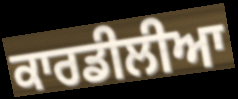
ਕਾਰਡੀਲੀਆ